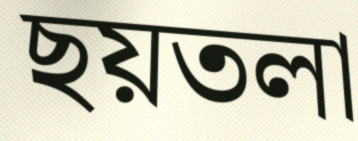
ছয়তলা